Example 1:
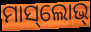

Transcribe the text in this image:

ମାସ୍‌ଲୋଭ୍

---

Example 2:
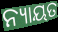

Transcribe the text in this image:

ନ୍ୟାୟତ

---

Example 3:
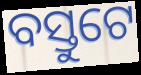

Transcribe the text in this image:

ବସ୍ତୁଟେ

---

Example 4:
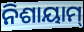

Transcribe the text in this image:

ନିଶାୟାମ୍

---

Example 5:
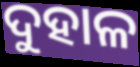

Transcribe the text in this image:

ଦୁହାଳ